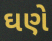
ઘણે